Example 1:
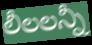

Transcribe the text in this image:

లీలలన్నీ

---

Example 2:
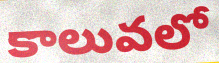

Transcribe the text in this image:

కాలువలో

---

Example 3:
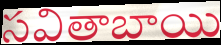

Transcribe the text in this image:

సవితాబాయి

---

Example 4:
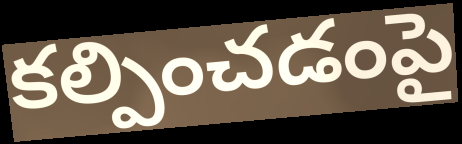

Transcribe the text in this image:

కల్పించడంపై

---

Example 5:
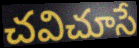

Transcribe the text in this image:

చవిచూసే